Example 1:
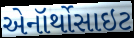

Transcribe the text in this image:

એનૉર્થોસાઇટ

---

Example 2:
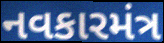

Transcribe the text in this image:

નવકારમંત્ર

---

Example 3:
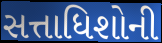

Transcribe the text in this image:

સત્તાધિશોની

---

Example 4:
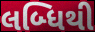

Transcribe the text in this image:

લબ્ધિથી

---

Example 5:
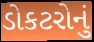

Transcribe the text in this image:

ડોકટરોનું